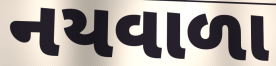
નયવાળા